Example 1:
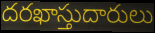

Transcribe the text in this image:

దరఖాస్తుదారులు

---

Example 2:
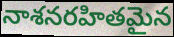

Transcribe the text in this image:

నాశనరహితమైన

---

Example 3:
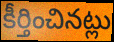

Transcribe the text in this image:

కీర్తించినట్లు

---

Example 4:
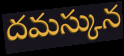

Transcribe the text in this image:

దమస్కున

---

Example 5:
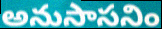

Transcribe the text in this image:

అనుసాసనిం